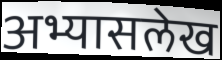
अभ्यासलेख